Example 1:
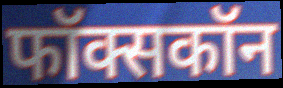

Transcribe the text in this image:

फॉक्सकॉन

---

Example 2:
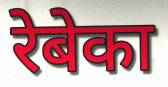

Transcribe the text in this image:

रेबेका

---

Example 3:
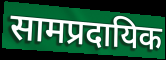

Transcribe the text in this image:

सामप्रदायिक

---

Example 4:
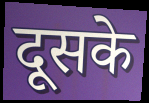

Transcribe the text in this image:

दूसके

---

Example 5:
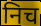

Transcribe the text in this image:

निच